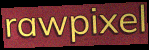
rawpixel